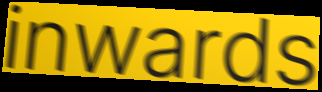
inwards